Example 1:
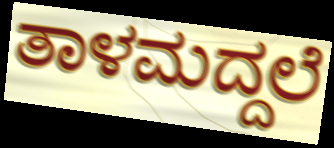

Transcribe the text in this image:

ತಾಳಮದ್ದಲೆ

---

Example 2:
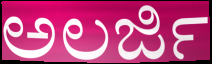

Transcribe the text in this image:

ಅಲರ್ಜಿ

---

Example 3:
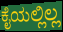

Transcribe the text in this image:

ಕೈಯಲ್ಲಿಲ್ಲ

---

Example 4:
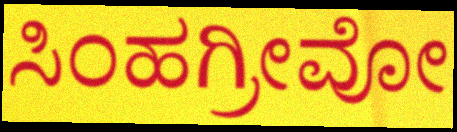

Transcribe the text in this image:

ಸಿಂಹಗ್ರೀವೋ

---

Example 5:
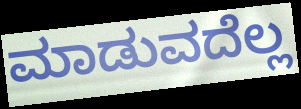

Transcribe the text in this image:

ಮಾಡುವದೆಲ್ಲ